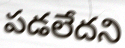
పడలేదని